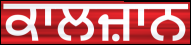
ਕਾਲਜ਼ਾਨ